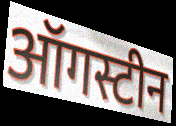
ऑगस्टीन